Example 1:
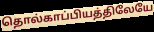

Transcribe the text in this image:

தொல்காப்பியத்திலேயே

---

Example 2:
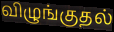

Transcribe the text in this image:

விழுங்குதல்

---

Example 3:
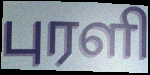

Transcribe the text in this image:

புரளி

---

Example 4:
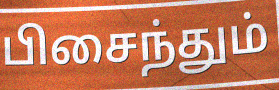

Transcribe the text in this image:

பிசைந்தும்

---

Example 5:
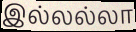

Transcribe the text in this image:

இல்லல்லா